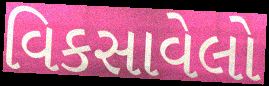
વિકસાવેલો